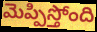
మెప్పిస్తోంది